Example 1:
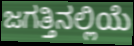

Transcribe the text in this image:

ಜಗತ್ತಿನಲ್ಲಿಯೆ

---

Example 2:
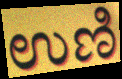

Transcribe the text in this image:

ಉಣಿ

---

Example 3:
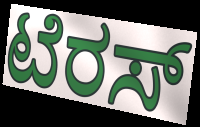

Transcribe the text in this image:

ಟೆರಸ್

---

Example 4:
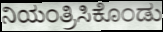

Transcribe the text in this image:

ನಿಯಂತ್ರಿಸಿಕೊಂಡು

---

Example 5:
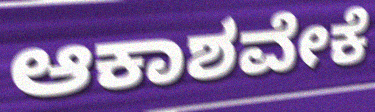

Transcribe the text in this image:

ಆಕಾಶವೇಕೆ